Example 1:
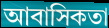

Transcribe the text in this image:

আবাসিকতা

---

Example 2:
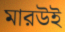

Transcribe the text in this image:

মারউই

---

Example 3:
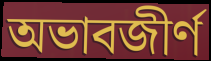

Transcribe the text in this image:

অভাবজীর্ণ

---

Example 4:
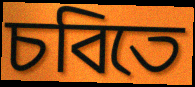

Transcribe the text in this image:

চবিতে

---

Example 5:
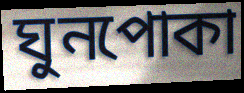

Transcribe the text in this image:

ঘুনপোকা